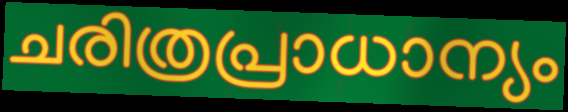
ചരിത്രപ്രാധാന്യം